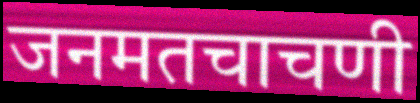
जनमतचाचणी